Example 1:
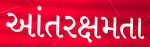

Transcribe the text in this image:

આંતરક્ષમતા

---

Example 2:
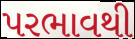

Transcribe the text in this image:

પરભાવથી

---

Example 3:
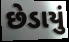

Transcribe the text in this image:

છેડાયું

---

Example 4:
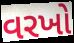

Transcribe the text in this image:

વરખો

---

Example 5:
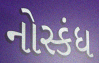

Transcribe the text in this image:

નોસ્કંધ